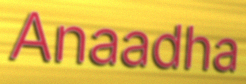
Anaadha